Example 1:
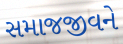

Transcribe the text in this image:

સમાજજીવને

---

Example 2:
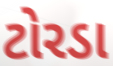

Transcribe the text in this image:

ટોરડા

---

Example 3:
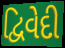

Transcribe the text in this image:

દ્વિવેદી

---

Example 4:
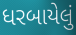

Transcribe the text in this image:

ધરબાયેલું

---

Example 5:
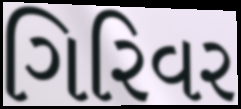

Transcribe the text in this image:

ગિરિવર